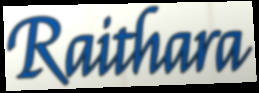
Raithara